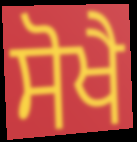
ਸੋਖੈ